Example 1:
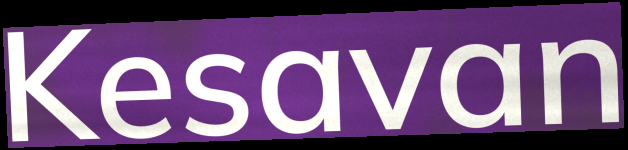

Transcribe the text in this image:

Kesavan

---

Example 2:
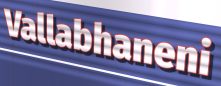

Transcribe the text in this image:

Vallabhaneni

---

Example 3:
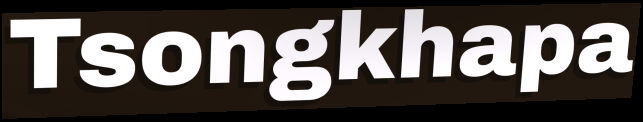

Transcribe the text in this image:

Tsongkhapa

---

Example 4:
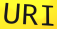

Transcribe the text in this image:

URI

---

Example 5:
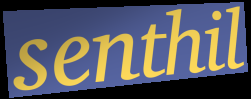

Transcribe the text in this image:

senthil